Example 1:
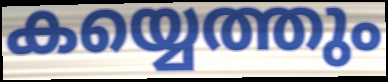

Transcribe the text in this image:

കയ്യെത്തും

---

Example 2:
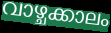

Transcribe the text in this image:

വാഴ്ചക്കാലം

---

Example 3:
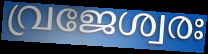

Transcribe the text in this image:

വ്രജേശ്വരഃ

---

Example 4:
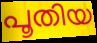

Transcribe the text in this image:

പൂതിയ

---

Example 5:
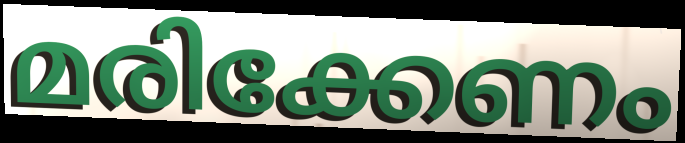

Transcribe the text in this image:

മരിക്കേണം